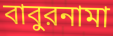
বাবুরনামা